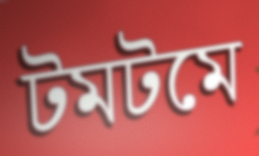
টমটমে